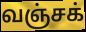
வஞ்சக்